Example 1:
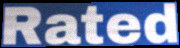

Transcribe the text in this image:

Rated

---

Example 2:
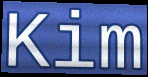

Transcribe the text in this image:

Kim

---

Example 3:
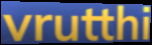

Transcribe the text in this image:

vrutthi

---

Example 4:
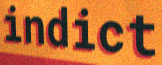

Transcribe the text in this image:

indict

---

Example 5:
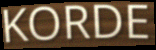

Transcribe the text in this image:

KORDE